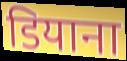
डियाना